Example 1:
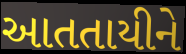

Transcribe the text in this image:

આતતાયીને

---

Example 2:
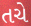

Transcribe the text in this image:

તચે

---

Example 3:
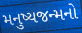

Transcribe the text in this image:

મનુષ્યજન્મનો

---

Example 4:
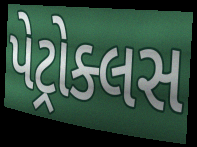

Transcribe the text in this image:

પેટ્રોક્લસ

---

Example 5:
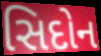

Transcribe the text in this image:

સિદોન